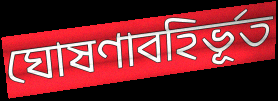
ঘোষণাবহির্ভূত